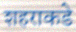
शहराकडे